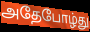
அதேபோழ்து